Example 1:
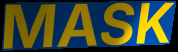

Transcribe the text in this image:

MASK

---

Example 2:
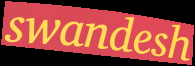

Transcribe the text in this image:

swandesh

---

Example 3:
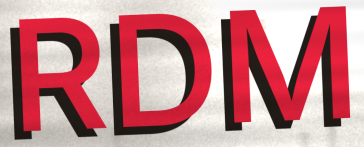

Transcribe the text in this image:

RDM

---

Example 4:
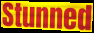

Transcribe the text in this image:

Stunned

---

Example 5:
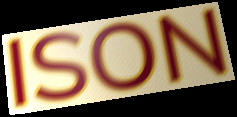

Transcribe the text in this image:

ISON